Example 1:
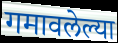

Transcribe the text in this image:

गमावलेल्या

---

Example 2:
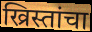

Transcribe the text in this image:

ख्रिस्तांचा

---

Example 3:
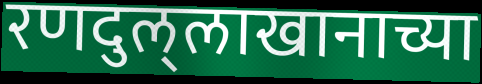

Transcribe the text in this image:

रणदुल्लाखानाच्या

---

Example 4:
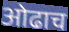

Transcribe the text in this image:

ओढाच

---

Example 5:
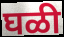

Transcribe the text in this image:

घळी